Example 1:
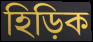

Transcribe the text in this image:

হিড়িক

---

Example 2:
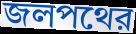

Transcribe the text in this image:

জলপথের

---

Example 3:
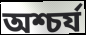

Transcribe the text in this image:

অশ্চর্য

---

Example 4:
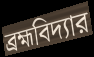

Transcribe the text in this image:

ব্রহ্মবিদ্যার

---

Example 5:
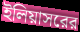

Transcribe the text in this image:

ইলিয়াসরের